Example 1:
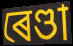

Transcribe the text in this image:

ৰেণ্ডা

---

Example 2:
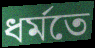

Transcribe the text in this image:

ধৰ্মতে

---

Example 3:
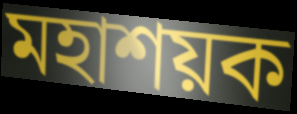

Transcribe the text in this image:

মহাশয়ক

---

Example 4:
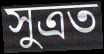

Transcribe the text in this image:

সুত্ৰত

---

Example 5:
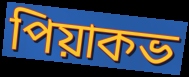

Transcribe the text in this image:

পিয়াকভ